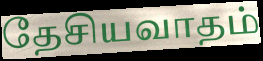
தேசியவாதம்